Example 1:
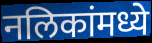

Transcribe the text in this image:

नलिकांमध्ये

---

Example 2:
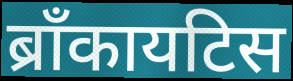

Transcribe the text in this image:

ब्राँकायटिस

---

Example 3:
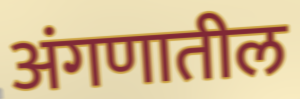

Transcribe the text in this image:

अंगणातील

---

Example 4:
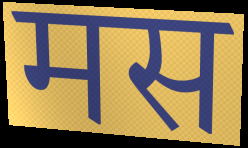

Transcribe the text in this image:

मस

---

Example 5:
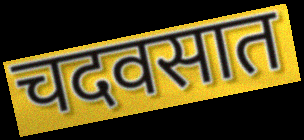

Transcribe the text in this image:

चदवसात